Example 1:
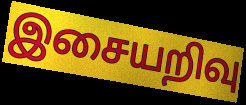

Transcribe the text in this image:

இசையறிவு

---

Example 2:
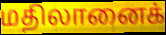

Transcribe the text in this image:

மதிலானைக்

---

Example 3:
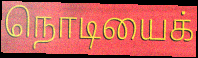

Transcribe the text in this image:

நொடியைக்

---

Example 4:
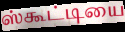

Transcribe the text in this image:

ஸ்கூட்டியை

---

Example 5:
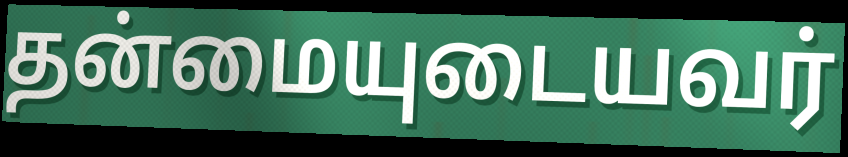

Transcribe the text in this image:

தன்மையுடையவர்